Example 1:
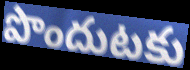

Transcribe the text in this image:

పొందుటకు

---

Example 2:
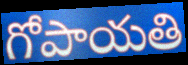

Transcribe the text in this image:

గోపాయతి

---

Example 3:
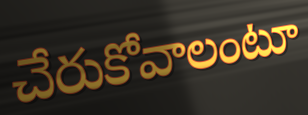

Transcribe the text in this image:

చేరుకోవాలంటూ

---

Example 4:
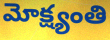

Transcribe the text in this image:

మోక్ష్యంతి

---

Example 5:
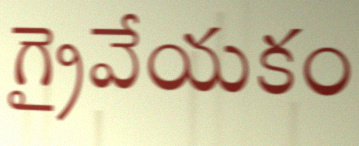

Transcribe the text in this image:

గ్రైవేయకం